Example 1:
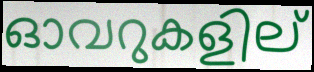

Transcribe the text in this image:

ഓവറുകളില്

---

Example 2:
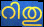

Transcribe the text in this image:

റിതു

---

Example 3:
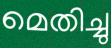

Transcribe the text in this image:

മെതിച്ചു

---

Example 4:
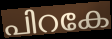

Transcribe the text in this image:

പിറകേ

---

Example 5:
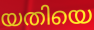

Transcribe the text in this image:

യതിയെ